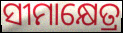
ସୀମାକ୍ଷେତ୍ର